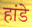
हांडे